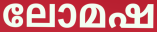
ലോമഷ